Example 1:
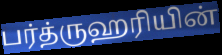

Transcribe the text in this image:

பர்த்ருஹரியின்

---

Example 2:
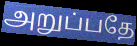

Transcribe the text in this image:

அறுப்பதே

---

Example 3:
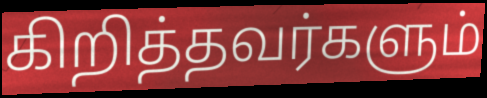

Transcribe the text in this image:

கிறித்தவர்களும்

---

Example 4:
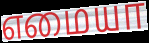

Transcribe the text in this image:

எமையா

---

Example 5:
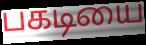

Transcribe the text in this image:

பகடியை